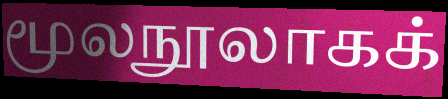
மூலநூலாகக்